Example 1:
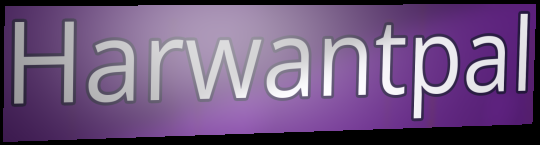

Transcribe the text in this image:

Harwantpal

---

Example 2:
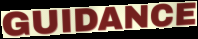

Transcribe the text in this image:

GUIDANCE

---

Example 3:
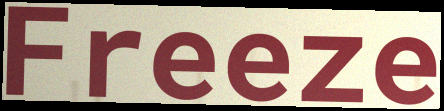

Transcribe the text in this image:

Freeze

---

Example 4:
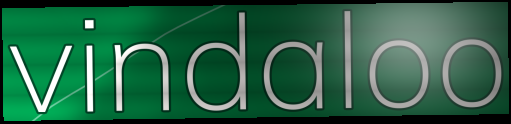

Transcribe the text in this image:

vindaloo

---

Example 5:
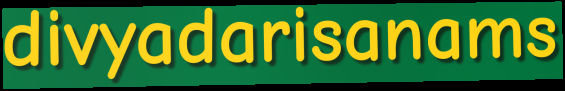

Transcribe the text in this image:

divyadarisanams